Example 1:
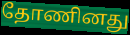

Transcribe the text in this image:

தோணினது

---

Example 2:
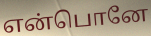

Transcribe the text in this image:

என்பொனே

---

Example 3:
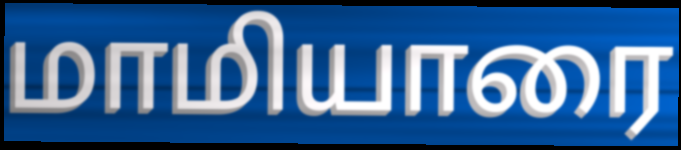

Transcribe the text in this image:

மாமியாரை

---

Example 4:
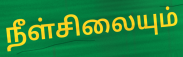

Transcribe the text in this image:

நீள்சிலையும்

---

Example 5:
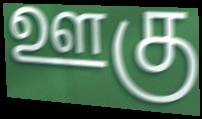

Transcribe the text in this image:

ஊகு